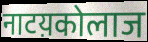
नाटय़कोलाज